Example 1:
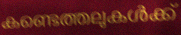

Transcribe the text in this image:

കണ്ടെത്തലുകൾക്ക്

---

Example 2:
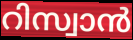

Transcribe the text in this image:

റിസ്വാൻ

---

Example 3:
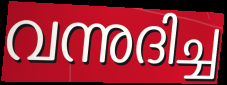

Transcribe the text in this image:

വന്നുദിച്ച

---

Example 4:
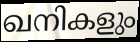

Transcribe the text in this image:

ഖനികളും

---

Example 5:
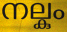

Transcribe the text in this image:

നല്കും